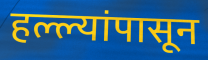
हल्ल्यांपासून